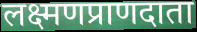
लक्ष्मणप्राणदाता